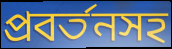
প্রবর্তনসহ